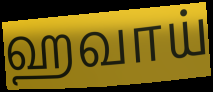
ஹவாய்